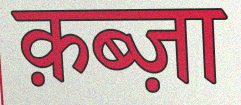
क़ब्ज़ा